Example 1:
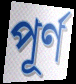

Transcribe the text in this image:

পূর্ণ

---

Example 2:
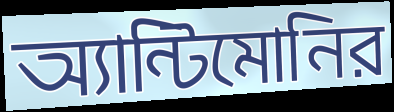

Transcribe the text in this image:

অ্যান্টিমোনির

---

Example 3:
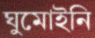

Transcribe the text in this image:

ঘুমোইনি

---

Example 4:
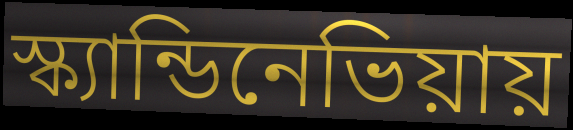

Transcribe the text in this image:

স্ক্যান্ডিনেভিয়ায়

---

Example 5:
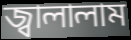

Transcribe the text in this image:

জ্বালালাম